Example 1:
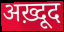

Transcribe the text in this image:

अख़्दूद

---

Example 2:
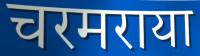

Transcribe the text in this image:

चरमराया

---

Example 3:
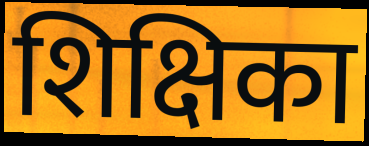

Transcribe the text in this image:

शिक्षिका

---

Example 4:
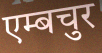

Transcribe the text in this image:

एम्बचुर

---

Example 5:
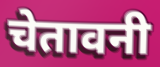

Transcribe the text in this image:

चेतावनी